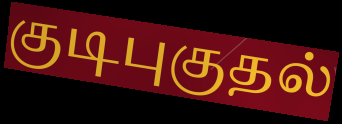
குடிபுகுதல்